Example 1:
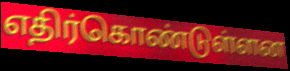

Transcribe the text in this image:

எதிர்கொண்டுள்ளன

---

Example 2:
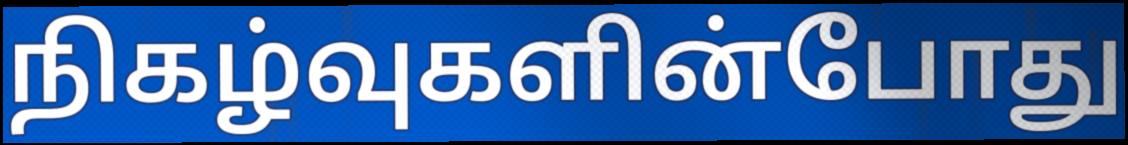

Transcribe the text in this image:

நிகழ்வுகளின்போது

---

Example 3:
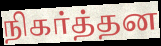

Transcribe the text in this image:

நிகர்த்தன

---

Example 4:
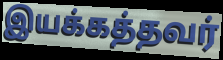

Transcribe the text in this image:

இயக்கத்தவர்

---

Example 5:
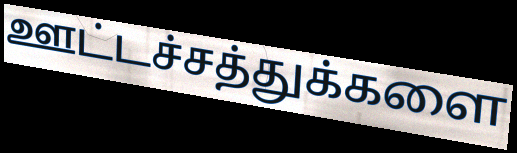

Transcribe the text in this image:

ஊட்டச்சத்துக்களை